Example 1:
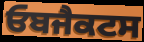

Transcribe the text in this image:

ਓਬਜੈਕਟਸ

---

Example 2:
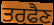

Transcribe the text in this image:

ਤਰਫੈਣ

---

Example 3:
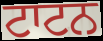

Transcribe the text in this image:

ਟਾਟਨ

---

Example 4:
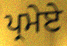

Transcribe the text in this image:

ਪ੍ਰਮੇਏ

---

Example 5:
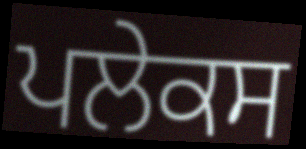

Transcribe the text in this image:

ਪਲੇਕਸ